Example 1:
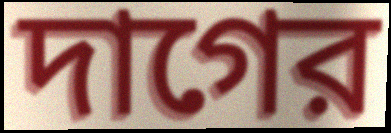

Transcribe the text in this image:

দাগের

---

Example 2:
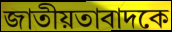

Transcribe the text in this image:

জাতীয়তাবাদকে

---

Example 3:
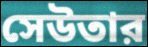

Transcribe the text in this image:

সেউতার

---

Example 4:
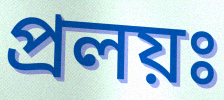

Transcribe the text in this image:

প্রলয়ঃ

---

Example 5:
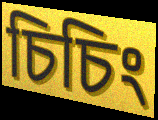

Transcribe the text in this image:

চিচিং